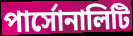
পার্সোনালিটি